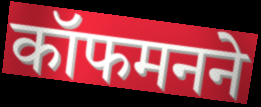
कॉफमनने